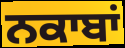
ਨਕਾਬਾਂ